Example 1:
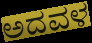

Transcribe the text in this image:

ಅದವಳ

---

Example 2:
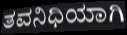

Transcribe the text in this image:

ತವನಿಧಿಯಾಗಿ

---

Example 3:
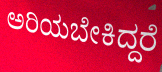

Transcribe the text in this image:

ಅರಿಯಬೇಕಿದ್ದರೆ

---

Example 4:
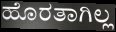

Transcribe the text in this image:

ಹೊರತಾಗಿಲ್ಲ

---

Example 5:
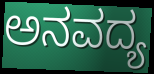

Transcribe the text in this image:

ಅನವದ್ಯ